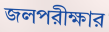
জলপরীক্ষার